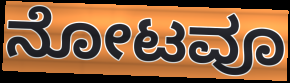
ನೋಟವೂ